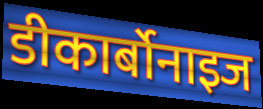
डीकार्बोनाइज